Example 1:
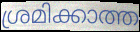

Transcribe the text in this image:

ശ്രമിക്കാത്ത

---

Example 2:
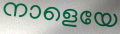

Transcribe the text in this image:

നാളെയേ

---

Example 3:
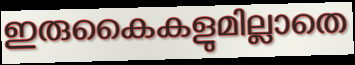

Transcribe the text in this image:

ഇരുകൈകളുമില്ലാതെ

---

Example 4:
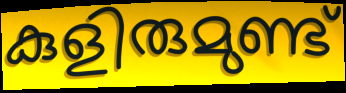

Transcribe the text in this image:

കുളിരുമുണ്ട്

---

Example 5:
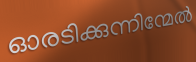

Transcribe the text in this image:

ഓരടിക്കുന്നിന്മേൽ